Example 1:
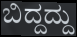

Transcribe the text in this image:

ಬಿದ್ದದ್ದು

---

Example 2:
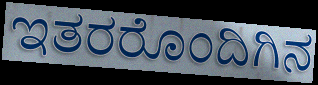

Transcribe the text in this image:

ಇತರರೊಂದಿಗಿನ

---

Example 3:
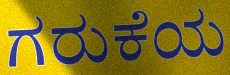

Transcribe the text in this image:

ಗರುಕೆಯ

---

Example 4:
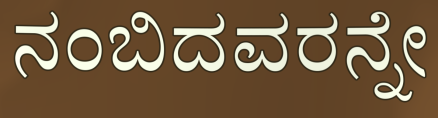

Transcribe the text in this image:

ನಂಬಿದವರನ್ನೇ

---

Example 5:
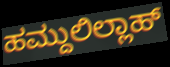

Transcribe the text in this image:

ಹಮ್ದುಲಿಲ್ಲಾಹ್